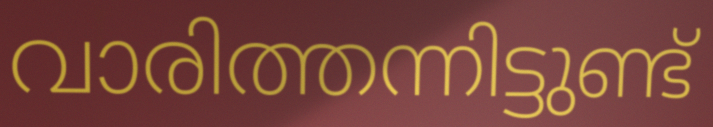
വാരിത്തന്നിട്ടുണ്ട്